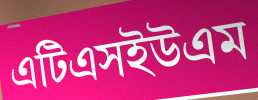
এটিএসইউএম